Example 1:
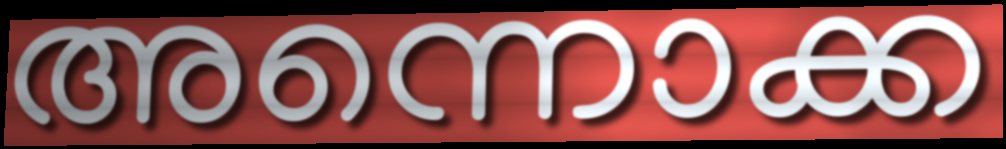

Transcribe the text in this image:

അന്നൊക്ക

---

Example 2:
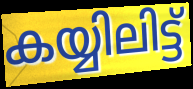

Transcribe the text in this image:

കയ്യിലിട്ട്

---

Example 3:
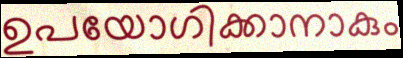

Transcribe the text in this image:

ഉപയോഗിക്കാനാകും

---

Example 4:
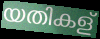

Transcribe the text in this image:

യതികള്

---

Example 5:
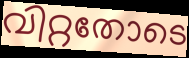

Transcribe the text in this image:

വിറ്റതോടെ